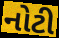
નોટી